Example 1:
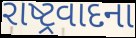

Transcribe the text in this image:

રાષ્ટ્રવાદના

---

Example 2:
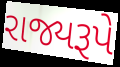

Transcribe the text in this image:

રાજ્યરૂપે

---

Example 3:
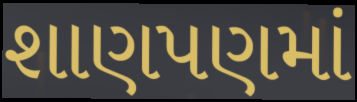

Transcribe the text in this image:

શાણપણમાં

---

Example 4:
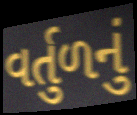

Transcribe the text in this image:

વર્તુળનું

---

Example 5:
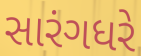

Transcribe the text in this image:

સારંગધરે